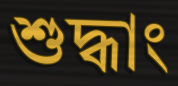
শুদ্ধাং